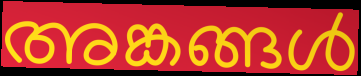
അങ്കങ്ങൾ